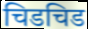
चिडचिड